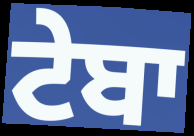
ਟੇਬਾ